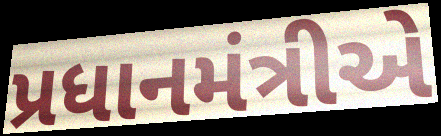
પ્રધાનમંત્રીએ